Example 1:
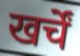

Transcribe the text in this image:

खर्चें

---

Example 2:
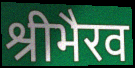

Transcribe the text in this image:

श्रीभैरव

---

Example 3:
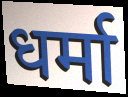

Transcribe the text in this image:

धर्मा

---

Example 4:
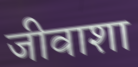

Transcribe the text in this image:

जीवाशा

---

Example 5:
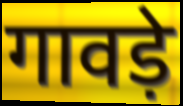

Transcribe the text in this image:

गावड़े